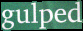
gulped